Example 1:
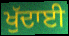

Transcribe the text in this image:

ਖੁੱਦਾਈ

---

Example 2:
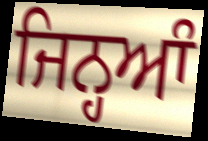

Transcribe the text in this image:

ਜਿਨ੍ਹਆੰ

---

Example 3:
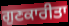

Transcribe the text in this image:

ਗੁਣਕਾਰੀਤਾ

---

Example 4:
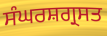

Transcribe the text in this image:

ਸੰਘਰਸ਼ਗ੍ਰਸਤ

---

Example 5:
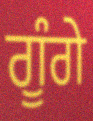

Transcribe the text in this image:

ਗੂੰਗੇ